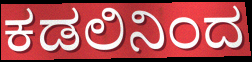
ಕಡಲಿನಿಂದ